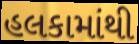
હલકામાંથી